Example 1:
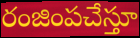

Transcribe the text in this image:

రంజింపచేస్తూ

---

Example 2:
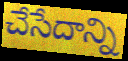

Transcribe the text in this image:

చేసేదాన్ని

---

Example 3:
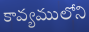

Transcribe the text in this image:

కావ్యములోని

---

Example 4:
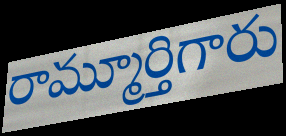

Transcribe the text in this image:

రామ్మూర్తిగారు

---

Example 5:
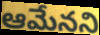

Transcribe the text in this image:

ఆమేనని